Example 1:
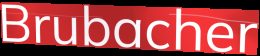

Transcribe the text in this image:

Brubacher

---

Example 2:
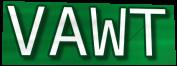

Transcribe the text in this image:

VAWT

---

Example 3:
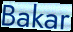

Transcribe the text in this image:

Bakar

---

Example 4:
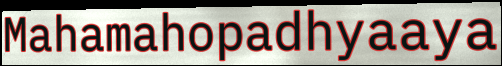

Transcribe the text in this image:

Mahamahopadhyaaya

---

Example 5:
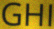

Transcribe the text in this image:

GHI